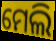
ମେଲି